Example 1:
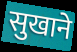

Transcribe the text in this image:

सुखाने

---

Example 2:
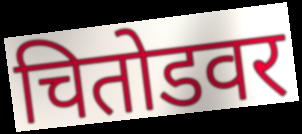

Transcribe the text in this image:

चितोडवर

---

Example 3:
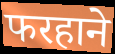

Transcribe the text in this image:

फरहाने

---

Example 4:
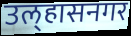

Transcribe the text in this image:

उल्हासनगर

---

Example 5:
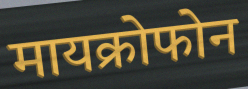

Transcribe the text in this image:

मायक्रोफोन